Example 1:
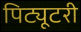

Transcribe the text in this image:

पिट्यूटरी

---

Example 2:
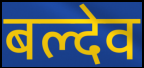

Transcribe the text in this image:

बल्देव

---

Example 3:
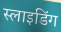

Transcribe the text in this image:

स्लाइडिंग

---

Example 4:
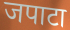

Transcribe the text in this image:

जपाटा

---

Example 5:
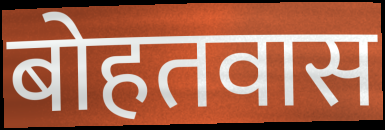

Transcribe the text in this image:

बोहतवास